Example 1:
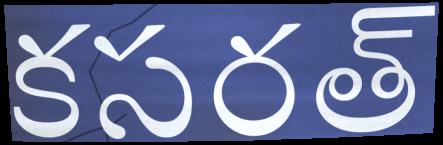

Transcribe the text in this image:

కసరత్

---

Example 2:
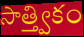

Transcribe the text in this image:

సాత్త్వికం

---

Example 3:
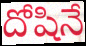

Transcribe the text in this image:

దోషినే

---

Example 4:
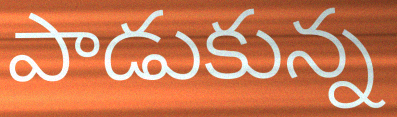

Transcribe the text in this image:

పాడుకున్న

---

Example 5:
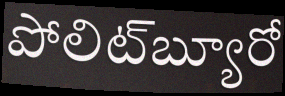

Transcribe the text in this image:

పోలిట్‌బ్యూరో